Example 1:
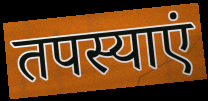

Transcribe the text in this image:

तपस्याएं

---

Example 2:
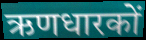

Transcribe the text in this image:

ऋणधारकों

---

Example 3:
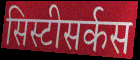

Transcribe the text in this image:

सिस्टीसर्कस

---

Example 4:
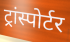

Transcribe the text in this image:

ट्रांस्पोर्टर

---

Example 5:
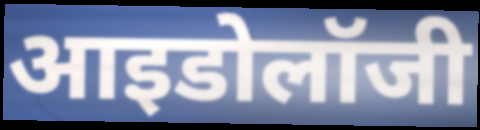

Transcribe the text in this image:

आइडोलॉजी